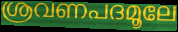
ശ്രവണപദമൂലേ